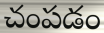
చంపడం